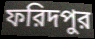
ফরিদপুর